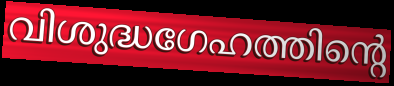
വിശുദ്ധഗേഹത്തിന്റെ